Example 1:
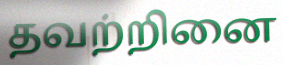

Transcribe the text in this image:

தவற்றினை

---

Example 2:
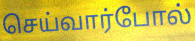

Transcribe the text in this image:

செய்வார்போல்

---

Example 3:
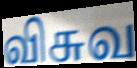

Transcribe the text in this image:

விசுவ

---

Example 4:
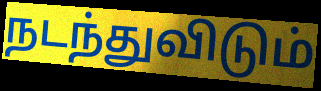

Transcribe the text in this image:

நடந்துவிடும்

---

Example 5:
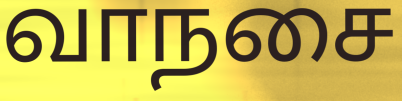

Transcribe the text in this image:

வாநசை